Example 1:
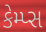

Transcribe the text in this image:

કેમ્પ્સ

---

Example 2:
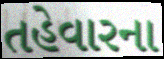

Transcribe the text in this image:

તહેવારના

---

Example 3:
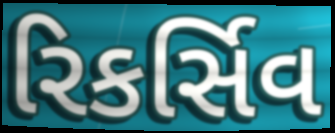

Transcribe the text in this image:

રિકર્સિવ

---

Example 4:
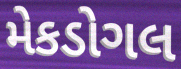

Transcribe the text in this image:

મેકડોગલ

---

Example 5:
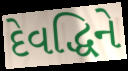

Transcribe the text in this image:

દેવદ્ધિને